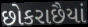
છોકરાછૈયાં